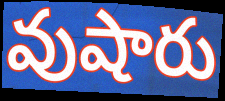
వుషారు